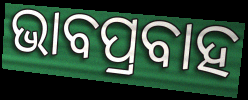
ଭାବପ୍ରବାହ